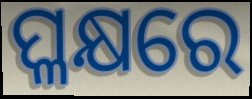
ପ୍ଳକ୍ଷରେ